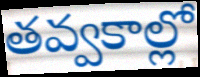
తవ్వకాల్లో